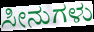
ಸೀನುಗಳು